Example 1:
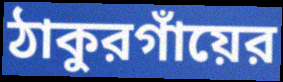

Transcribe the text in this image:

ঠাকুরগাঁয়ের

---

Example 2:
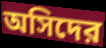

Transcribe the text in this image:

অসিদের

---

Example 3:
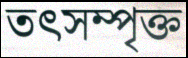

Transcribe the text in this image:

তৎসম্পৃক্ত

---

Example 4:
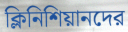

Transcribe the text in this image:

ক্লিনিশিয়ানদের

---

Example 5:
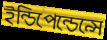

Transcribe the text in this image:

ইন্ডিপেন্ডেন্সে